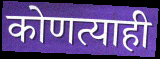
कोणत्याही